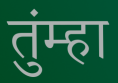
तुंम्हा